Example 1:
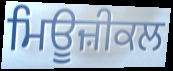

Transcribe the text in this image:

ਮਿਊਜ਼ੀਕਲ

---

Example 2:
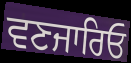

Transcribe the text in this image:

ਵਣਜਾਰਿਓ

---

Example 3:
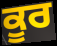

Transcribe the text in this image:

ਕੂਰ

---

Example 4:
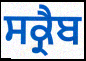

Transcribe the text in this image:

ਸਕ੍ਰੈਬ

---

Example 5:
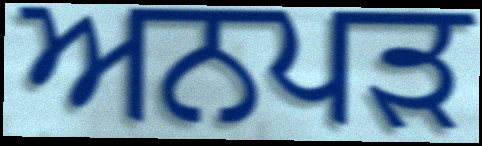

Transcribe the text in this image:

ਅਨਪੜ